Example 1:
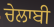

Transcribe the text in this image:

ਚੇਲਾਬੀ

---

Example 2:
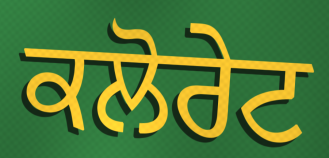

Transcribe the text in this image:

ਕਲੋਰੇਟ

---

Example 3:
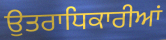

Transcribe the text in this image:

ਉਤਰਾਧਿਕਾਰੀਆਂ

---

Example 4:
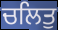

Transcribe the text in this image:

ਚਲਿਤੁ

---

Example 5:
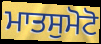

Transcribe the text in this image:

ਮਾਤਸੁਮੋਟੋ